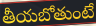
తీయబోతుంటే